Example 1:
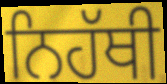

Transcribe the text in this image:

ਨਿਹੱਥੀ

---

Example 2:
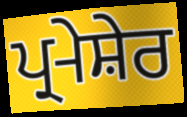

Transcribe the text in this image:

ਪ੍ਰ੍ਮੇਸ਼ੇਰ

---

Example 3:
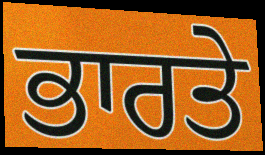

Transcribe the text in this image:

ਭਾਰਤੇ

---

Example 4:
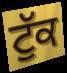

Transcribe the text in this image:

ਟੁੱਕ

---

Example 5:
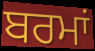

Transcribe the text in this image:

ਬਰਮਾਂ